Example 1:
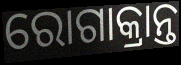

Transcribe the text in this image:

ରୋଗାକ୍ରାନ୍ତ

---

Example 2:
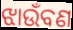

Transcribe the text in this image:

ଝାଉଁବଣ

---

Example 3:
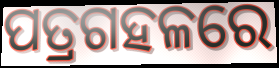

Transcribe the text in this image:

ପତ୍ରଗହଳରେ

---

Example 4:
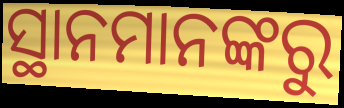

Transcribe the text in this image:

ସ୍ଥାନମାନଙ୍କରୁ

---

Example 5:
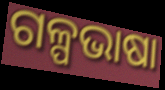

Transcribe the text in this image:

ଗଳ୍ପଭାଷା